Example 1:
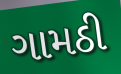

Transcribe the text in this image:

ગામઠી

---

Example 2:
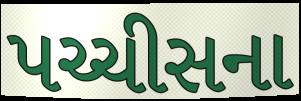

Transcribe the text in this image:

પચ્ચીસના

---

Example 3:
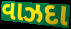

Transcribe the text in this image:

વાઝદા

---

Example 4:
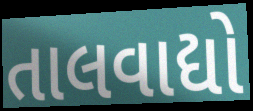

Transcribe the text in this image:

તાલવાદ્યો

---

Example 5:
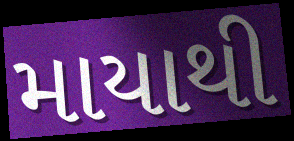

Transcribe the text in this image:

માયાથી